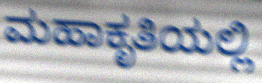
ಮಹಾಕೃತಿಯಲ್ಲಿ